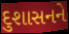
દુશાસનને